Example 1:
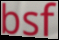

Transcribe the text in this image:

bsf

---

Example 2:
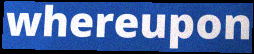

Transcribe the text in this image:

whereupon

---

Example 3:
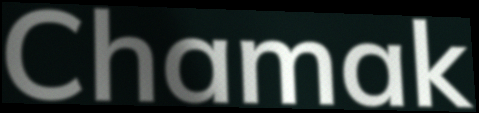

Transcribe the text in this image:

Chamak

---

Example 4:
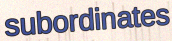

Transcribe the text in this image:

subordinates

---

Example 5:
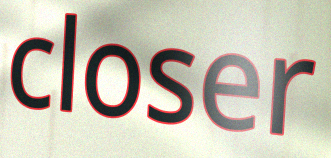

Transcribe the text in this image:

closer